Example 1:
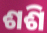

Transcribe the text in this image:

ଶଶି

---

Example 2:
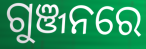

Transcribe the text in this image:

ଗୁଞ୍ଜନରେ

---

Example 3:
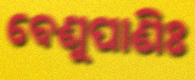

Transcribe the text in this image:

ବେଣୁପାଣିଃ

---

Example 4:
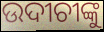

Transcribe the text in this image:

ଉଦୀଚୀଙ୍କୁ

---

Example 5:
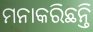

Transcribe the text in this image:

ମନାକରିଛନ୍ତି